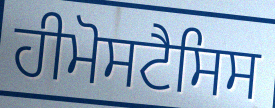
ਹੀਮੋਸਟੈਸਿਸ